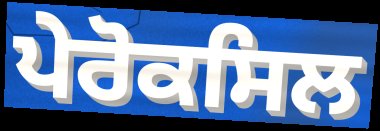
ਪੇਰੋਕਸਿਲ